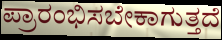
ಪ್ರಾರಂಭಿಸಬೇಕಾಗುತ್ತದೆ